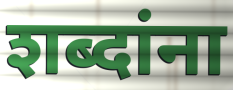
शब्दांना